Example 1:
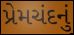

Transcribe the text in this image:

પ્રેમચંદનું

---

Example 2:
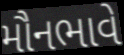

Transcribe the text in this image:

મૌનભાવે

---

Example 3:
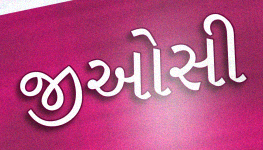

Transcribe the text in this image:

જીઓસી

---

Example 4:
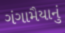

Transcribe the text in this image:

ગંગામૈયાનું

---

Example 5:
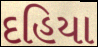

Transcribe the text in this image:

દહિયા